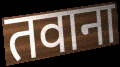
तवाना